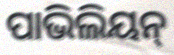
ପାଭିଲିୟନ୍